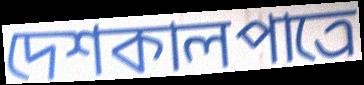
দেশকালপাত্রে